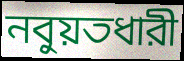
নবুয়তধারী